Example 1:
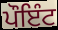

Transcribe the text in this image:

ਪੌਇੰਟ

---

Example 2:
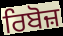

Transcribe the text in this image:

ਰਿਬੋਜ਼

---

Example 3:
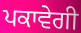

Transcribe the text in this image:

ਪਕਾਵੇਗੀ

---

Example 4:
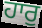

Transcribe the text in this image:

ਹਾਰੁ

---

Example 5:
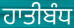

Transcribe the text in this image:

ਹਾਤੀਬੰਧ